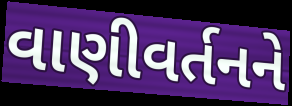
વાણીવર્તનને